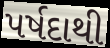
પર્ષદાથી